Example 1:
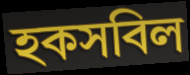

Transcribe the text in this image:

হকসবিল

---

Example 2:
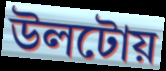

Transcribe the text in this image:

উলটোয়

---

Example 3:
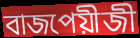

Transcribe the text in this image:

বাজপেয়ীজী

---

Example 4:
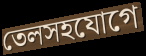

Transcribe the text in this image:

তেলসহযোগে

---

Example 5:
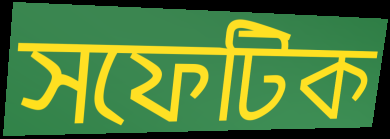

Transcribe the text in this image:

সফেটিক